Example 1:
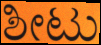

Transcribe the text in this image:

ಶೀಟು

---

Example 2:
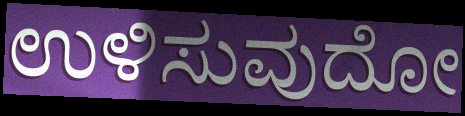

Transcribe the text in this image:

ಉಳಿಸುವುದೋ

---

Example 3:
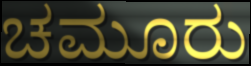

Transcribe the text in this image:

ಚಮೂರು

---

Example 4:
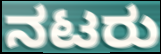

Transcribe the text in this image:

ನಟರು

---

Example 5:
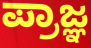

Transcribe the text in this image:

ಪ್ರಾಜ್ಞ